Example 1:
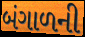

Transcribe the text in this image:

બંગાળની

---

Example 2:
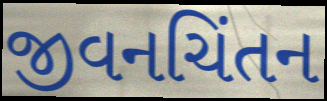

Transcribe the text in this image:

જીવનચિંતન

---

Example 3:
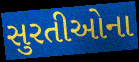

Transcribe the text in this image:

સુરતીઓના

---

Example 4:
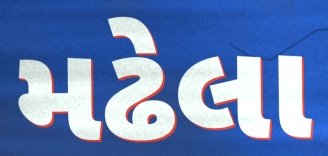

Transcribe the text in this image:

મઢેલા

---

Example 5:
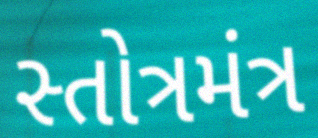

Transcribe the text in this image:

સ્તોત્રમંત્ર